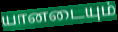
யானடையும்